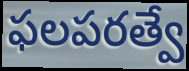
ఫలపరత్వే